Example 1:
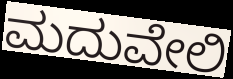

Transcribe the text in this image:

ಮದುವೇಲಿ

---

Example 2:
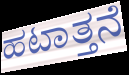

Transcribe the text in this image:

ಹಟಾತ್ತನೆ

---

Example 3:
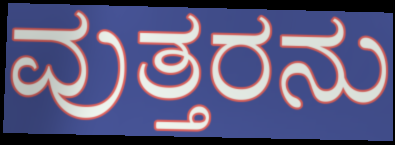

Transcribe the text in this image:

ವುತ್ತರನು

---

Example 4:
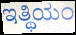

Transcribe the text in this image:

ಇತ್ಥಿಯಂ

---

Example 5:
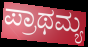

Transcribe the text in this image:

ಪ್ರಾಥಮ್ಯ